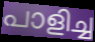
പാളിച്ച